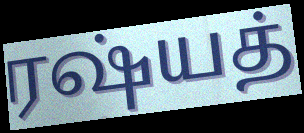
ரஷ்யத்